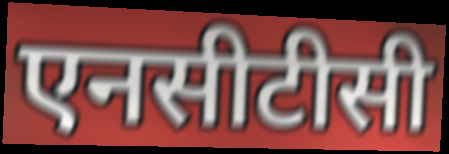
एनसीटीसी